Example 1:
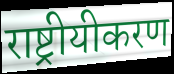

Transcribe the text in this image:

राष्ट्रीयीकरण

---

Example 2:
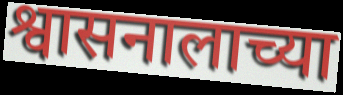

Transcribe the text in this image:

श्वासनालाच्या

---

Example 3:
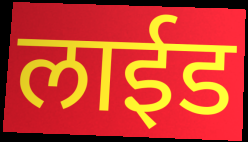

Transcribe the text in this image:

लाईड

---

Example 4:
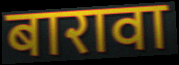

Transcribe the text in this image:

बारावा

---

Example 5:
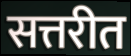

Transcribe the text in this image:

सत्तरीत